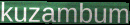
kuzambum